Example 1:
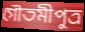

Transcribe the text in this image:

গৌতমীপুত্র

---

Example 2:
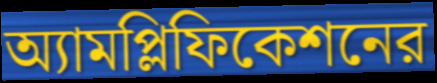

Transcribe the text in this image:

অ্যামপ্লিফিকেশনের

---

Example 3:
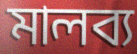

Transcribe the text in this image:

মালব্য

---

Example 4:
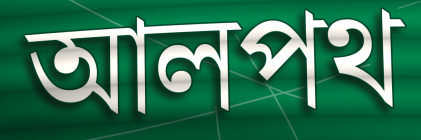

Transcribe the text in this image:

আলপথ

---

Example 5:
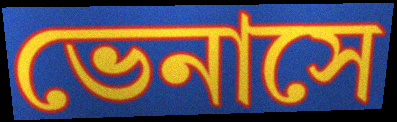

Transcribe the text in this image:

ভেনাসে